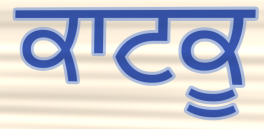
ਕਾਟਕੂ